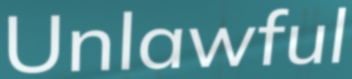
Unlawful